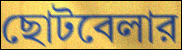
ছোটবেলার